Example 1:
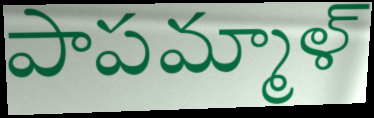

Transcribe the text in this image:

పాపమ్మాళ్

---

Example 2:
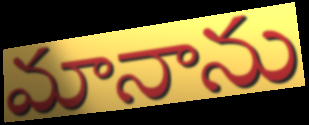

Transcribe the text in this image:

మానాను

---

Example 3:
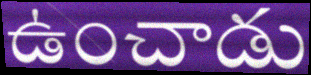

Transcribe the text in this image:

ఉంచాడు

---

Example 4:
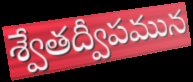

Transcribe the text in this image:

శ్వేతద్వీపమున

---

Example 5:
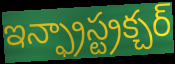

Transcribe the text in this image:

ఇన్ఫ్రాస్ట్రక్చర్